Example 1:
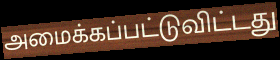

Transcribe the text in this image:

அமைக்கப்பட்டுவிட்டது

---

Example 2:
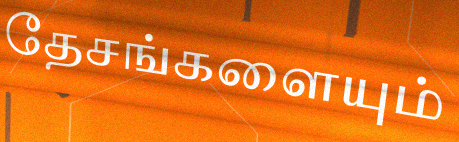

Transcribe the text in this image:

தேசங்களையும்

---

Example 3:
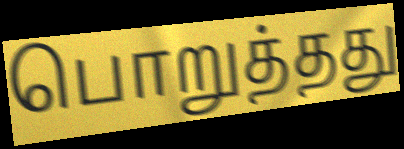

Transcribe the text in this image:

பொறுத்தது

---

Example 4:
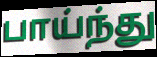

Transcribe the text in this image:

பாய்ந்து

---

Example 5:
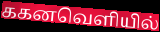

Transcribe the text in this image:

ககனவெளியில்